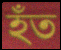
হঁত